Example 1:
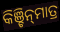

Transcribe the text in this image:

କିଞ୍ଚିନ୍‍ମାତ୍ର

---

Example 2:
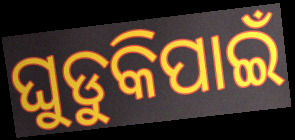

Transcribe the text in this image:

ଘୁଡୁକିପାଇଁ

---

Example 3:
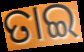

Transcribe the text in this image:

ତାଇ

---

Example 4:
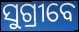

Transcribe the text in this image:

ସୁଗ୍ରୀବେ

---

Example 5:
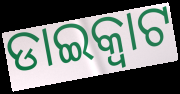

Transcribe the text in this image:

ଡାଇକ୍ଵାଟ